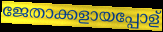
ജേതാക്കളായപ്പോള്